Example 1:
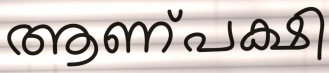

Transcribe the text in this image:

ആണ്പക്ഷി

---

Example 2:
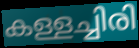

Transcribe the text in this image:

കള്ളച്ചിരി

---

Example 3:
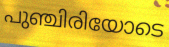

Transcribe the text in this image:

പുഞ്ചിരിയോടെ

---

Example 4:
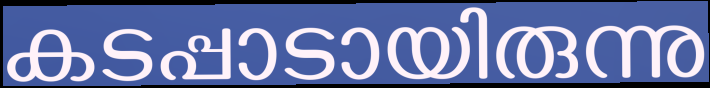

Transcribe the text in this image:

കടപ്പാടായിരുന്നു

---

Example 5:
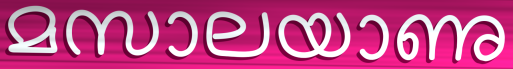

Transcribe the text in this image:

മസാലയാണു